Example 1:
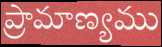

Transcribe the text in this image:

ప్రామాణ్యము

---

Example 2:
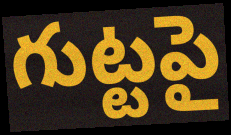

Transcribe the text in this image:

గుట్టపై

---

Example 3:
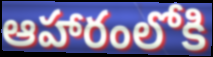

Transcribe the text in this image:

ఆహారంలోకి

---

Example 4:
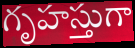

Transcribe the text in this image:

గృహస్తుగా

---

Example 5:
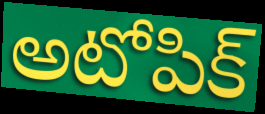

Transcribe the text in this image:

అటోపిక్